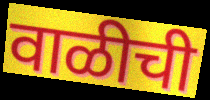
वाळीची